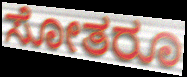
ಸೋತರೂ